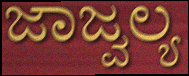
ಜಾಜ್ವಲ್ಯ